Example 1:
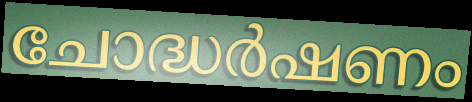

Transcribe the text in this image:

ചോദ്ധർഷണം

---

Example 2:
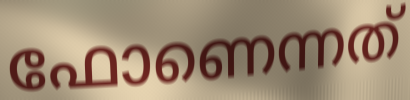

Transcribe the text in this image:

ഫോണെന്നത്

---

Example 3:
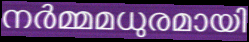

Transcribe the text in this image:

നർമ്മമധുരമായി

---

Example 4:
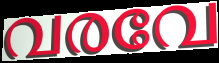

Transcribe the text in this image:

വരവേ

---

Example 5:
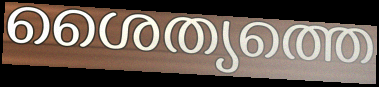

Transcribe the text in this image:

ശൈത്യത്തെ